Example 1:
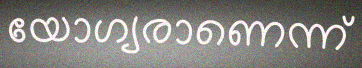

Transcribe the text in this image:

യോഗ്യരാണെന്ന്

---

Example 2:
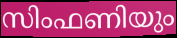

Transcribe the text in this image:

സിംഫണിയും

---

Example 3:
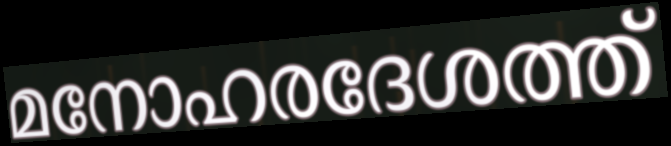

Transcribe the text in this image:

മനോഹരദേശത്ത്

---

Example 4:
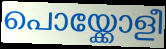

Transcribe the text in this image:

പൊയ്ക്കോളീ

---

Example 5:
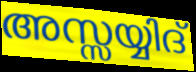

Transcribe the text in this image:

അസ്സയ്യിദ്